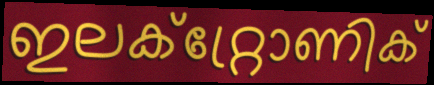
ഇലക്റ്റ്രോണിക്